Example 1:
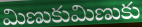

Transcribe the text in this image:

మిణుకుమిణుకు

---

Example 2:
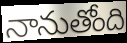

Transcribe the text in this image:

నానుతోంది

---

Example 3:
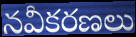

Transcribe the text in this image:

నవీకరణలు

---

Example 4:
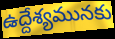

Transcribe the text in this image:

ఉద్దేశ్యమునకు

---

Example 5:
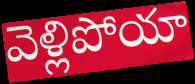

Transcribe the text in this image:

వెళ్లిపోయా